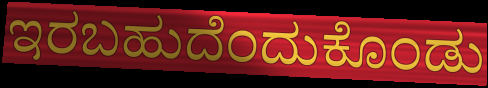
ಇರಬಹುದೆಂದುಕೊಂಡು